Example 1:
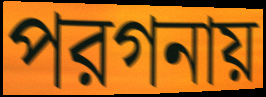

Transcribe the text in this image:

পরগনায়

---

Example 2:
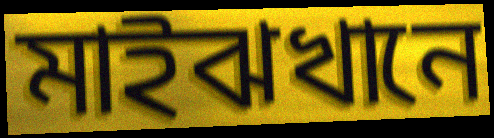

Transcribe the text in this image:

মাইঝখানে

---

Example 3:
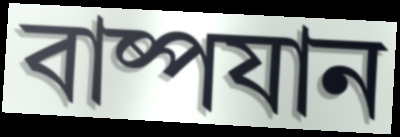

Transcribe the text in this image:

বাষ্পযান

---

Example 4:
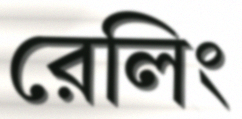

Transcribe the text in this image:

রেলিং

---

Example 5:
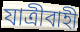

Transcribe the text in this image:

যাত্রীবাহী